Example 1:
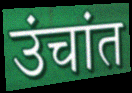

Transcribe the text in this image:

उंचांत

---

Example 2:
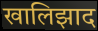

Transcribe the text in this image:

खालिझाद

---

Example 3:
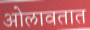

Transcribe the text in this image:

ओलावतात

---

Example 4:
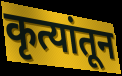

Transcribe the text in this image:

कृत्यांतून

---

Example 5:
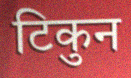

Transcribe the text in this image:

टिकुन